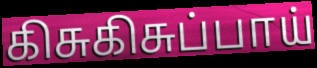
கிசுகிசுப்பாய்